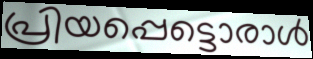
പ്രിയപ്പെട്ടൊരാൾ